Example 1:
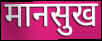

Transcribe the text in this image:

मानसुख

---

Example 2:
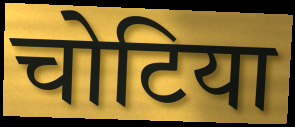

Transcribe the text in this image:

चोटिया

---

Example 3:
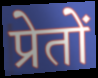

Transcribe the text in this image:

प्रेतों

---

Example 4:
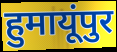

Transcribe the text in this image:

हुमायूंपुर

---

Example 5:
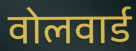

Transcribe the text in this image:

वोलवार्ड